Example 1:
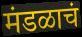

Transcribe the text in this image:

मंडळाचं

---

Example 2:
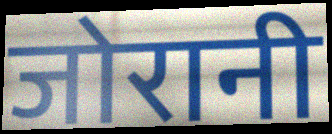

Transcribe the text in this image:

जोरानी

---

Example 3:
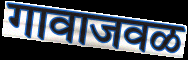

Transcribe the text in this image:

गावाजवळ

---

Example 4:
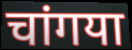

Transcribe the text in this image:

चांगया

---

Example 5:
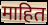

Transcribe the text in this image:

माहित